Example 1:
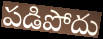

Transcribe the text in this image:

పడిపోదు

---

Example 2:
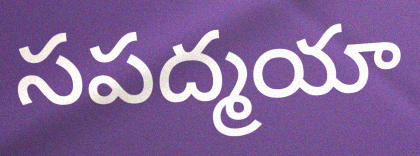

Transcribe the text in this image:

సపద్మయా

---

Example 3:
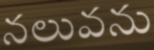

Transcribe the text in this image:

నలువను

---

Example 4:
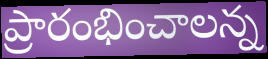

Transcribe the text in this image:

ప్రారంభించాలన్న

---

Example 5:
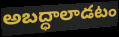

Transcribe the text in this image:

అబద్ధాలాడటం